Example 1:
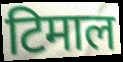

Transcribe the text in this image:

टिमाल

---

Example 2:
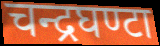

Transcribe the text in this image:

चन्द्रघण्टा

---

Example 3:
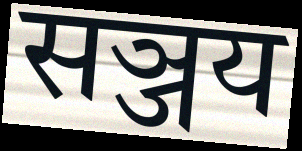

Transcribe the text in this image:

सञ्जय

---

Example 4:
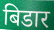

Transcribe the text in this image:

बिडार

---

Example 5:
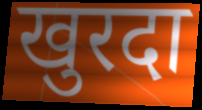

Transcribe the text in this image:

खुरदा